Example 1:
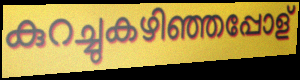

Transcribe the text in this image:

കുറച്ചുകഴിഞ്ഞപ്പോള്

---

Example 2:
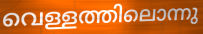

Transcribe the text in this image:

വെള്ളത്തിലൊന്നു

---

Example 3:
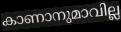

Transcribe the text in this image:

കാണാനുമാവില്ല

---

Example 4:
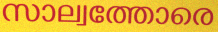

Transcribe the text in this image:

സാല്വത്തോരെ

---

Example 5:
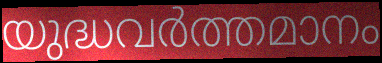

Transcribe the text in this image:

യുദ്ധവർത്തമാനം